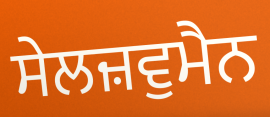
ਸੇਲਜ਼ਵੁਮੈਨ